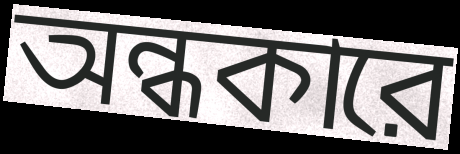
অন্ধকারে